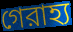
গেরাহ্য